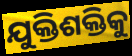
ଯୁକ୍ତିଶକ୍ତିକୁ